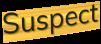
Suspect